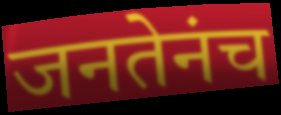
जनतेनंच